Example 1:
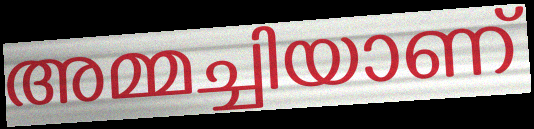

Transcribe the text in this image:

അമ്മച്ചിയാണ്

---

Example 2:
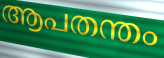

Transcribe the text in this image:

ആപതന്തം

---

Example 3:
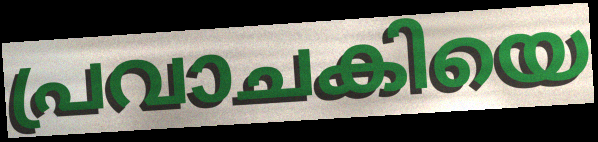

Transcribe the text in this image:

പ്രവാചകിയെ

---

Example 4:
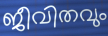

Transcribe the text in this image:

ജീവിതവും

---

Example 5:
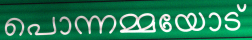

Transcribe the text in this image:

പൊന്നമ്മയോട്